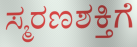
ಸ್ಮರಣಶಕ್ತಿಗೆ